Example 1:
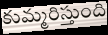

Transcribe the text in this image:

కుమ్మరిస్తుంది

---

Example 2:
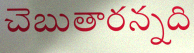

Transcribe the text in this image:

చెబుతారన్నది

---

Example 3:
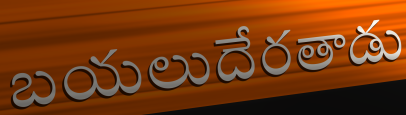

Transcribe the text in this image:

బయలుదేరతాడు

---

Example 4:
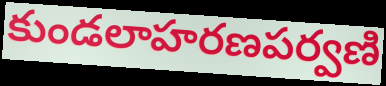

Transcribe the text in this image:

కుండలాహరణపర్వణి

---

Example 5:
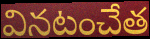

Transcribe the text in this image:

వినటంచేత